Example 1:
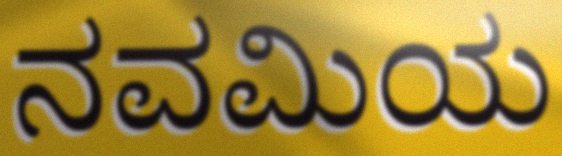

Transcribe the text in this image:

ನವಮಿಯ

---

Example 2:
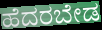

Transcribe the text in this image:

ಹೆದರಬೇಡ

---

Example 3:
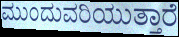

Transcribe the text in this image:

ಮುಂದುವರಿಯುತ್ತಾರೆ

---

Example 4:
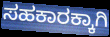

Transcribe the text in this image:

ಸಹಕಾರಕ್ಕಾಗಿ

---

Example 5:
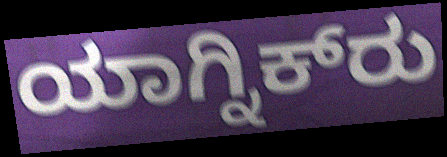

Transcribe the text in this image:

ಯಾಗ್ನಿಕ್‍ರು